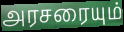
அரசரையும்